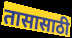
तासासाठी